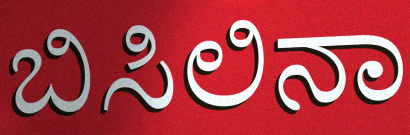
ಬಿಸಿಲಿನಾ